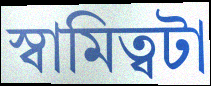
স্বামিত্বটা